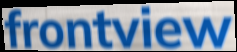
frontview